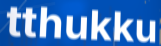
tthukku